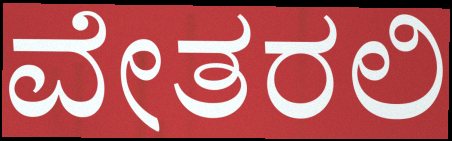
ವೇತರಲಿ